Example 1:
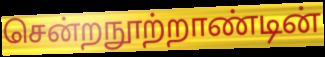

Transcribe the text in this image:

சென்றநூற்றாண்டின்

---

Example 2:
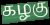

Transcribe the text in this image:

கழகு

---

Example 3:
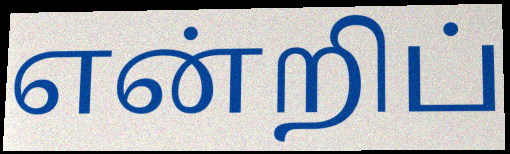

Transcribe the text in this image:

என்றிப்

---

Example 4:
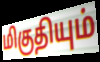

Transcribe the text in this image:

மிகுதியும்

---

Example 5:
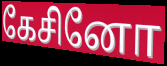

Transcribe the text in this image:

கேசினோ